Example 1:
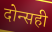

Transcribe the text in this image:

दोन्सही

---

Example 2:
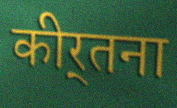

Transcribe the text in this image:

कीर्तना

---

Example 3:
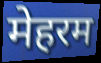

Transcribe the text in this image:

मेहरम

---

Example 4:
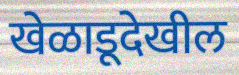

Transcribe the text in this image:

खेळाडूदेखील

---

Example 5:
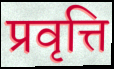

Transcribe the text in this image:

प्रवृत्ति